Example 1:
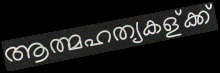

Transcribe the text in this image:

ആത്മഹത്യകള്ക്ക്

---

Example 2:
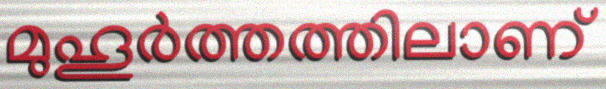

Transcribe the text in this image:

മുഹൂർത്തത്തിലാണ്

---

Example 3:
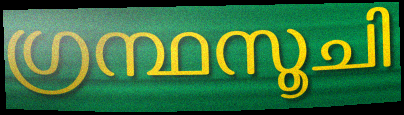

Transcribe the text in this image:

ഗ്രന്ഥസൂചി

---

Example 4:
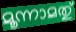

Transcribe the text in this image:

മൂന്നാമതു്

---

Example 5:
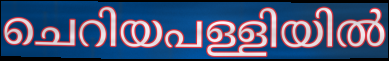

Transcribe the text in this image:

ചെറിയപള്ളിയിൽ